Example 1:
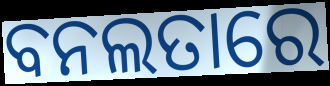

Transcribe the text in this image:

ବନଲତାରେ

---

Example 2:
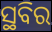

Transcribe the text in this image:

ସ୍ଥବିର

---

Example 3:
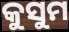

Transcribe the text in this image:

କୁସୁମ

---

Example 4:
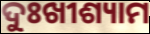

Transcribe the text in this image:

ଦୁଃଖୀଶ୍ୟାମ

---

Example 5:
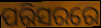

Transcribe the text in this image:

ପରିସରରେ